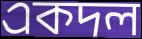
একদল